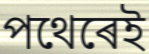
পথেৰেই